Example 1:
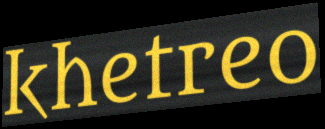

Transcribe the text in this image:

khetreo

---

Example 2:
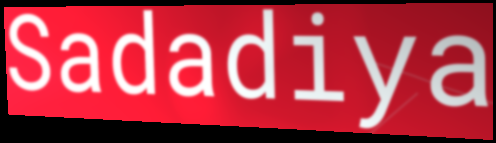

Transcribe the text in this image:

Sadadiya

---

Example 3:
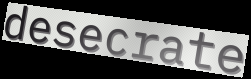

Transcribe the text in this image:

desecrate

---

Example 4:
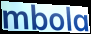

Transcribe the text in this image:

mbola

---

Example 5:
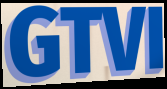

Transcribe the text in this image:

GTVI